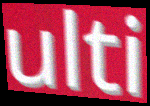
ulti